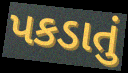
પકડાતું